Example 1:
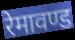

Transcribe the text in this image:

रेमावण्ड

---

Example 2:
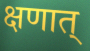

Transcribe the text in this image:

क्षणात्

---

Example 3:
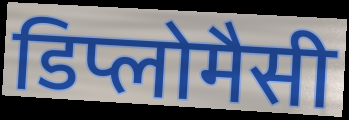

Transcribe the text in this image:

डिप्लोमैसी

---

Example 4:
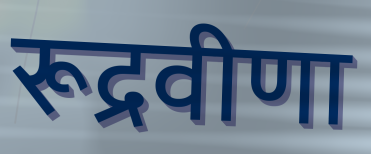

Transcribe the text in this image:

रूद्रवीणा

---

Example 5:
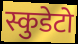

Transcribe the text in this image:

स्कुडेटो